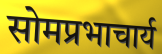
सोमप्रभाचार्य